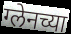
ग्लेनच्या